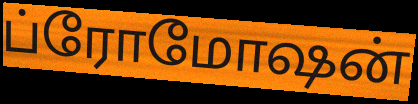
ப்ரோமோஷன்